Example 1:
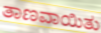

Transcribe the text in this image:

ತಾಣವಾಯಿತು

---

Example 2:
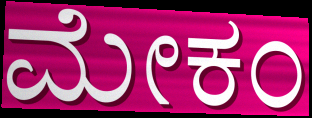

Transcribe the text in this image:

ಮೇಕಂ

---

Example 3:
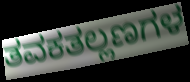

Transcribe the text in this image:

ತವಕತಲ್ಲಣಗಳ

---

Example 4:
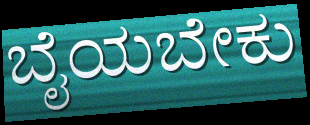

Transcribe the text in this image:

ಬೈಯಬೇಕು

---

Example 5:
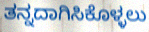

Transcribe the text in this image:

ತನ್ನದಾಗಿಸಿಕೊಳ್ಳಲು